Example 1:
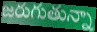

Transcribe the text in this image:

జరుగుతున్నా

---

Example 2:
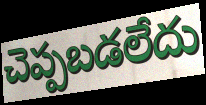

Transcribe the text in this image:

చెప్పబడలేదు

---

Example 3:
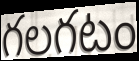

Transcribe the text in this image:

గలగటం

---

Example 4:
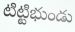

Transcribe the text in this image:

టిట్టిభుండు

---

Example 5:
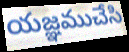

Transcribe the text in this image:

యజ్ఞముచేసి